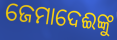
ଜେମାଦେଈଙ୍କୁ